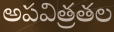
అపవిత్రతల